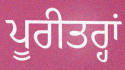
ਪੂਰੀਤਰ੍ਹਾਂ